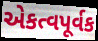
એકત્વપૂર્વક